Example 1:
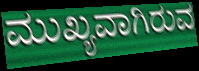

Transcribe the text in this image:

ಮುಖ್ಯವಾಗಿರುವ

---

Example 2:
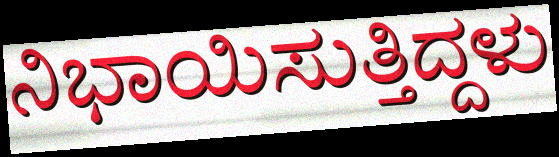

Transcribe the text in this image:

ನಿಭಾಯಿಸುತ್ತಿದ್ದಳು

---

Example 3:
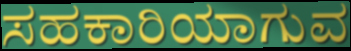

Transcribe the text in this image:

ಸಹಕಾರಿಯಾಗುವ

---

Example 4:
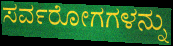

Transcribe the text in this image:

ಸರ್ವರೋಗಗಳನ್ನು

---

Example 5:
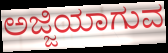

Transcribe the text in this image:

ಅಜ್ಜಿಯಾಗುವ